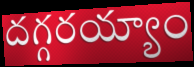
దగ్గరయ్యాం